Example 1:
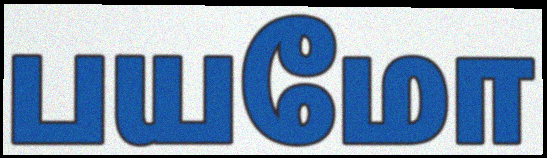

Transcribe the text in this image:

பயமோ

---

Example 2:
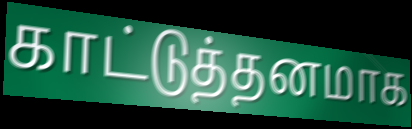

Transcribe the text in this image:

காட்டுத்தனமாக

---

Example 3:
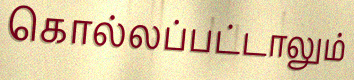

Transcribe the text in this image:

கொல்லப்பட்டாலும்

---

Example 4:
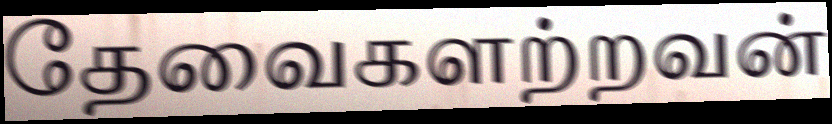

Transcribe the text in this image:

தேவைகளற்றவன்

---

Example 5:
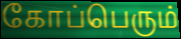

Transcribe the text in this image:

கோப்பெரும்